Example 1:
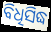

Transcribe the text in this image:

ବିଧିସିଦ୍ଧ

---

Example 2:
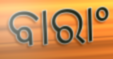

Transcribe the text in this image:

ବାରାଂ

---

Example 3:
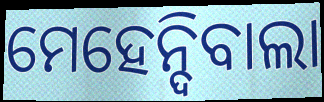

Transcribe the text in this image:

ମେହେନ୍ଦିବାଲା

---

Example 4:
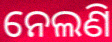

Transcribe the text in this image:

ନେଲଣି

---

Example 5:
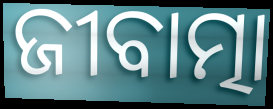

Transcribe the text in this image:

ଜୀବାତ୍ମା